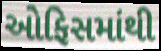
ઓફિસમાંથી